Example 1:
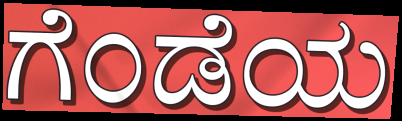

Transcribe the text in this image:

ಗೆಂಡೆಯ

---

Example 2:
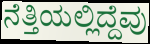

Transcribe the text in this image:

ನೆತ್ತಿಯಲ್ಲಿದ್ದೆವು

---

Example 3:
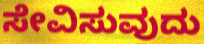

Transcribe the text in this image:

ಸೇವಿಸುವುದು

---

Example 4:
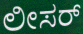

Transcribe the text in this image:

ಲೀಸರ್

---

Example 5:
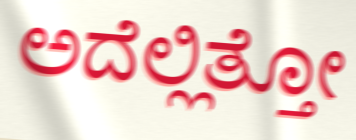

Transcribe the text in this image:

ಅದೆಲ್ಲಿತ್ತೋ